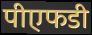
पीएफडी